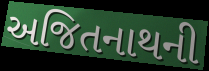
અજિતનાથની